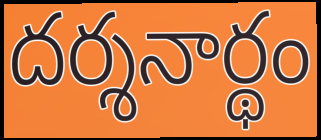
దర్శనార్థం